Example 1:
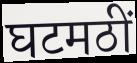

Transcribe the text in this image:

घटमठीं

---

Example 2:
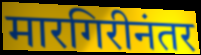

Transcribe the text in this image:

मारगिरीनंतर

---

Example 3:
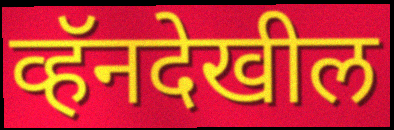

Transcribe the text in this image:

व्हॅनदेखील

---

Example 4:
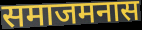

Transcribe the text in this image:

समाजमनास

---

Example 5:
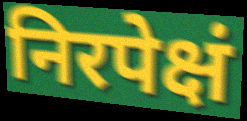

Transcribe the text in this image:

निरपेक्षं